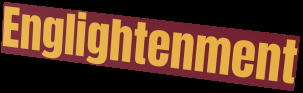
Englightenment